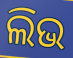
ଲିଭ